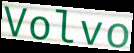
Volvo